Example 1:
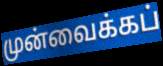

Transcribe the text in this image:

முன்வைக்கப்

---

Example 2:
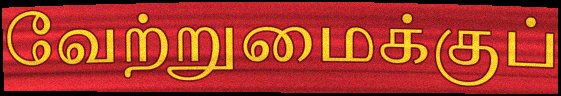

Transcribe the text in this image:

வேற்றுமைக்குப்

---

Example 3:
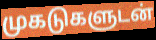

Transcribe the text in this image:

முகடுகளுடன்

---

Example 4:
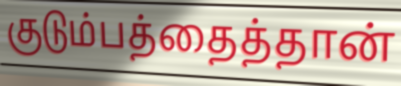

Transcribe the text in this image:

குடும்பத்தைத்தான்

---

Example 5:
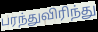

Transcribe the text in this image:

பரந்துவிரிந்து